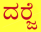
ದರ‍್ಜೆ